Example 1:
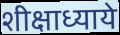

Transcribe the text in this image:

शीक्षाध्याये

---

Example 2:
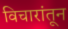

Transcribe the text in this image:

विचारांतून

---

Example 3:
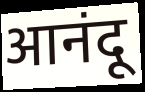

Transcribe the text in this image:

आनंदू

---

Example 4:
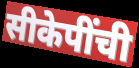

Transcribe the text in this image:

सीकेपींची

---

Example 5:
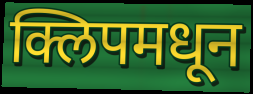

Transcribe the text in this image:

क्लिपमधून